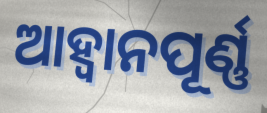
ଆହ୍ବାନପୂର୍ଣ୍ଣ